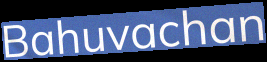
Bahuvachan